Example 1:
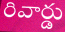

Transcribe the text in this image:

రివార్డు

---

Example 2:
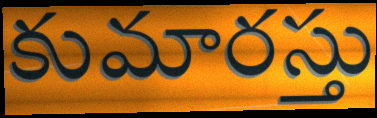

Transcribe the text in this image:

కుమారస్తు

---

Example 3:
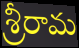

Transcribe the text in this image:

శ్రీరామ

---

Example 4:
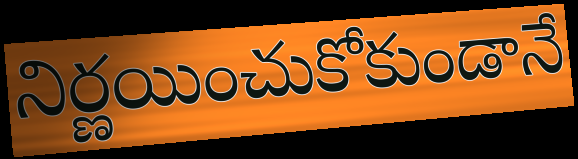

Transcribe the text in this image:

నిర్ణయించుకోకుండానే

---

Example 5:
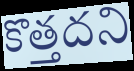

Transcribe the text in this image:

కొత్తదని